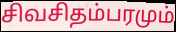
சிவசிதம்பரமும்